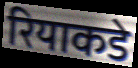
रियाकडे